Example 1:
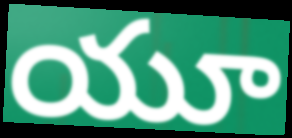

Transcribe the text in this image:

యూ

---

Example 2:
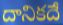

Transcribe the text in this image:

దానికదే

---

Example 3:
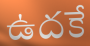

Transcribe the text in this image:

ఉదకే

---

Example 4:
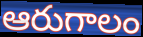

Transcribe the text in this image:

ఆరుగాలం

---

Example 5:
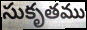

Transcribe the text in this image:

సుకృతము